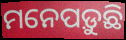
ମନେପଡ଼ୁଛି